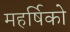
महर्षिको